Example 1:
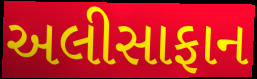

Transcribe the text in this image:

અલીસાફાન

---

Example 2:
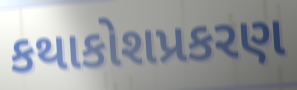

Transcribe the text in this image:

કથાકોશપ્રકરણ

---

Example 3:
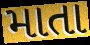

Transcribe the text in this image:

માતા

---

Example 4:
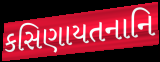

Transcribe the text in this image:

કસિણાયતનાનિ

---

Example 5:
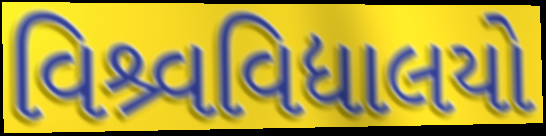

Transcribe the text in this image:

વિશ્ર્વવિદ્યાલયો